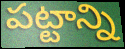
పట్టాన్ని